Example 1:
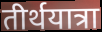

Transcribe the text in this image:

तीर्थयात्रा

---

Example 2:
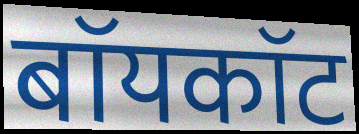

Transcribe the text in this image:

बॉयकॉट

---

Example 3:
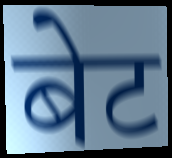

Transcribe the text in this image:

बेट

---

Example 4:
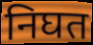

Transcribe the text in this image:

निघत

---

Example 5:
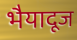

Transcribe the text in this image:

भैयादूज